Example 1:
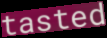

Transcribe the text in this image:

tasted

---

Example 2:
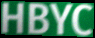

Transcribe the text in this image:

HBYC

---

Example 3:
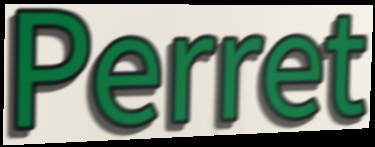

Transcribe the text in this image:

Perret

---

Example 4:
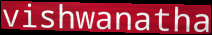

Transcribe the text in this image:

vishwanatha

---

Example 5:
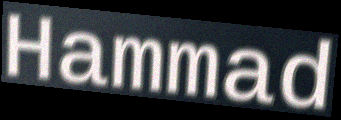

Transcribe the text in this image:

Hammad